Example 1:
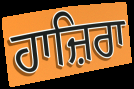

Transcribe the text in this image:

ਹਾਜ਼ਿਰਾ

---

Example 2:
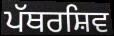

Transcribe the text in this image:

ਪੱਥਰਸ਼ਿਵ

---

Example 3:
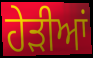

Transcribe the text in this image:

ਹੇੜੀਆਂ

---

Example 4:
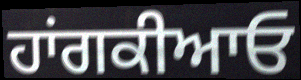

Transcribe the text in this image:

ਹਾਂਗਕੀਆਓ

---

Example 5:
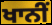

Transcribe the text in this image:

ਖਾਨੀਂ